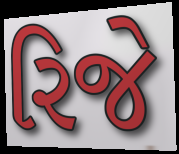
રિજે